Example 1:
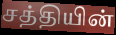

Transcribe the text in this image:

சத்தியின்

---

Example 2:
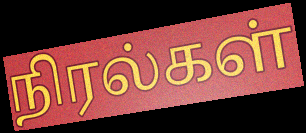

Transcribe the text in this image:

நிரல்கள்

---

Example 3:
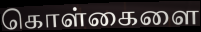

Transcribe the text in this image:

கொள்கைளை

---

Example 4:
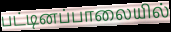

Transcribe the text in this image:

பட்டினப்பாலையில்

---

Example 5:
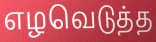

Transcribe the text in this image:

எழவெடுத்த